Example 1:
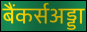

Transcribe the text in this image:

बैंकर्सअड्डा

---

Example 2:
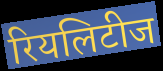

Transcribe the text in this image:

रियलिटीज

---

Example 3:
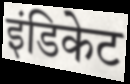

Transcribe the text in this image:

इंडिकेट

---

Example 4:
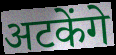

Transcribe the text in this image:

अटकेंगे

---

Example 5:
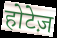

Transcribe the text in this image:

होटेज़